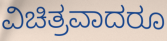
ವಿಚಿತ್ರವಾದರೂ